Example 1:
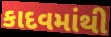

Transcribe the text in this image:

કાદવમાંથી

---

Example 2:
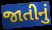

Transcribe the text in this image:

જાતીનું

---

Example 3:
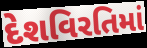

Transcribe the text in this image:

દેશવિરતિમાં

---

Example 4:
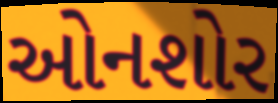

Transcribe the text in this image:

ઓનશોર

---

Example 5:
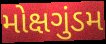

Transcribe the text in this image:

મોક્ષગુંડમ